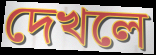
দেখলে